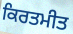
ਕਿਰਤਮੀਤ